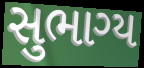
સુભાગ્ય